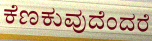
ಕೆಣಕುವುದೆಂದರೆ